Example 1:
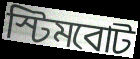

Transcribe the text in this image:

স্টিমবোট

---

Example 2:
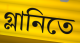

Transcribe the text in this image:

গ্লানিতে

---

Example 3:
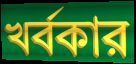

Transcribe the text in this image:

খর্বকার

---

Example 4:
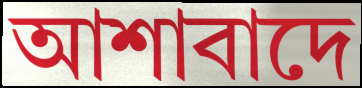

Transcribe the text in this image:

আশাবাদে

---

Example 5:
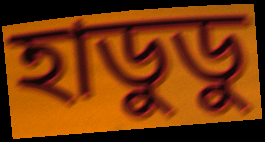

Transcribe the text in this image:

হাডুডু